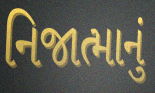
નિજાત્માનું